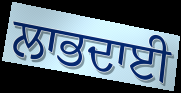
ਲਾਭਦਾਈ